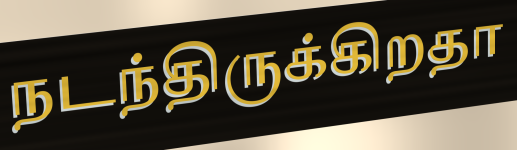
நடந்திருக்கிறதா